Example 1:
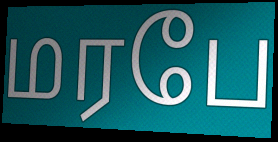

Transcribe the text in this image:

மரபே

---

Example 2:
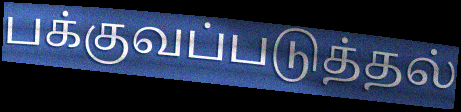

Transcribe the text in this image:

பக்குவப்படுத்தல்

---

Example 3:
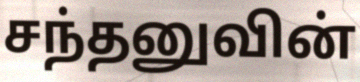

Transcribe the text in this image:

சந்தனுவின்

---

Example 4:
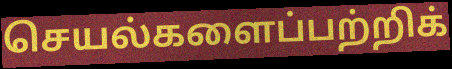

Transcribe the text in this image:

செயல்களைப்பற்றிக்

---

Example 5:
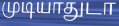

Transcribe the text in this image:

முடியாதுடா